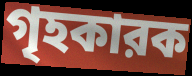
গৃহকারক